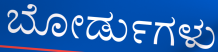
ಬೋರ್ಡುಗಳು